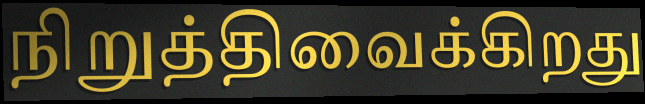
நிறுத்திவைக்கிறது